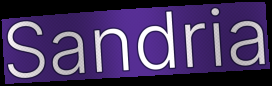
Sandria